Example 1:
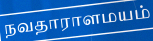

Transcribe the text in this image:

நவதாராளமயம்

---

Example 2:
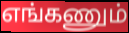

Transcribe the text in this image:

எங்கணும்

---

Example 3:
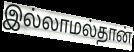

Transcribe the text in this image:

இல்லாமல்தான்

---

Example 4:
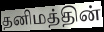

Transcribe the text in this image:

தனிமத்தின்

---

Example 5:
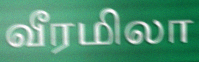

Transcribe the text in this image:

வீரமிலா